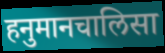
हनुमानचालिसा